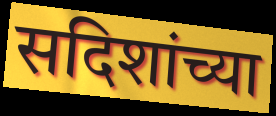
सदिशांच्या